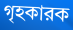
গৃহকারক